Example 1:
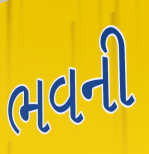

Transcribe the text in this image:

ભવની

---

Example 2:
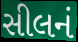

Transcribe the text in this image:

સીલનં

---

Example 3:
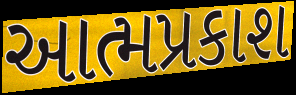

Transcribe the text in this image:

આત્મપ્રકાશ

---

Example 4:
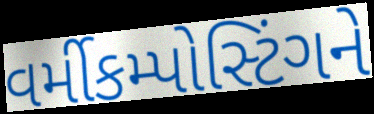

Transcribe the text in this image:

વર્મીકમ્પોસ્ટિંગને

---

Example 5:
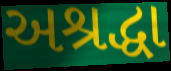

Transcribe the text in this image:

અશ્રદ્ધા